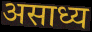
असाध्य